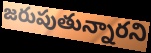
జరుపుతున్నారని